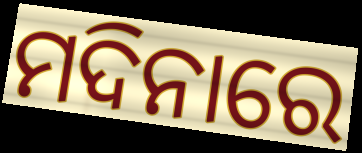
ମଦିନାରେ